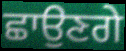
ਛਾਉਣਗੇ